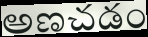
అణచడం